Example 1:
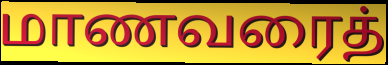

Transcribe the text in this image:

மாணவரைத்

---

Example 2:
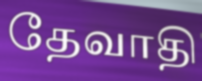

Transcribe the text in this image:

தேவாதி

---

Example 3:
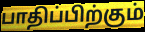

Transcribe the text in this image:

பாதிப்பிற்கும்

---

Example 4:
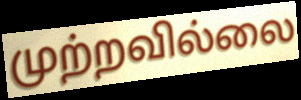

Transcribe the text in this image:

முற்றவில்லை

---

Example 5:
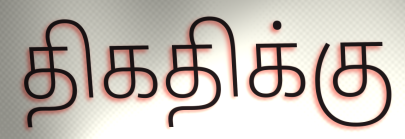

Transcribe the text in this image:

திகதிக்கு